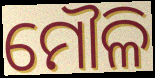
ମୌଳି